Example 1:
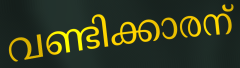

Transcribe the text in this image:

വണ്ടിക്കാരന്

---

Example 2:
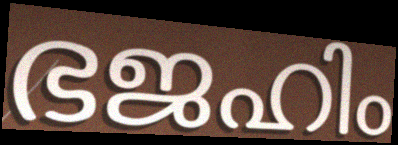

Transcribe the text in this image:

ഭജഹിം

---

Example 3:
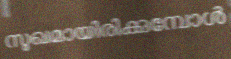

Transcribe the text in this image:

സുഖമായിരിക്കുമ്പോൾ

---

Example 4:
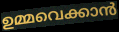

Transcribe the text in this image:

ഉമ്മവെക്കാൻ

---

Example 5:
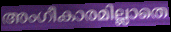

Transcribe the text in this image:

അംഗീകാരമില്ലാതെ